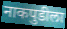
नाकपुडीला